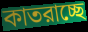
কাতরাচ্ছে